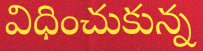
విధించుకున్న